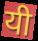
यी